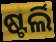
ଷ୍ଟର୍ଲି